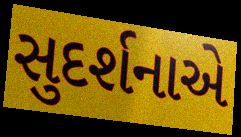
સુદર્શનાએ